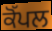
ਕੋੱਪਲ